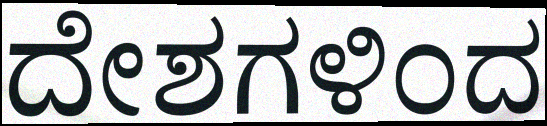
ದೇಶಗಳಿಂದ